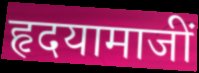
हृदयामाजीं